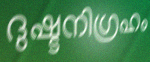
ദുഷ്ടനിഗ്രഹം